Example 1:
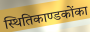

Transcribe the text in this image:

स्थितिकाण्डकोंका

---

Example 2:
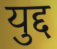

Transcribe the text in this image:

युद्द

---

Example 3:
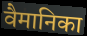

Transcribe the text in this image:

वैमानिका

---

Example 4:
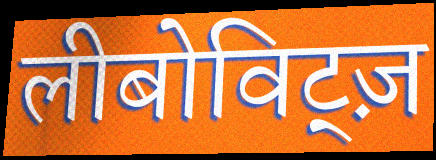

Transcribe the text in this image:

लीबोविट्ज़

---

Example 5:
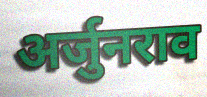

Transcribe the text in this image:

अर्जुनराव